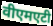
वीएमएटी